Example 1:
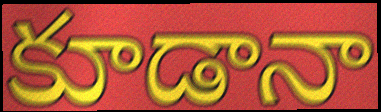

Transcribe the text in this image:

కూడానా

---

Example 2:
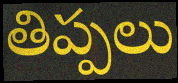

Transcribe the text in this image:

తిప్పలు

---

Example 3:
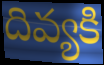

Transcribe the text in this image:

దివ్యకి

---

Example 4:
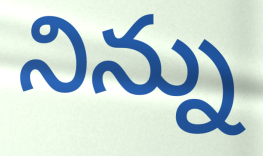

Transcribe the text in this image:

నిన్ను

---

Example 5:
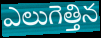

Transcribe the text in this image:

ఎలుగెత్తిన